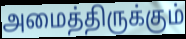
அமைத்திருக்கும்